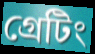
গ্রেটিং